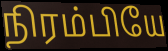
நிரம்பியே